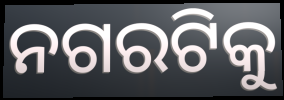
ନଗରଟିକୁ